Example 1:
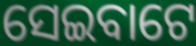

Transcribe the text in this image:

ସେଇବାଟେ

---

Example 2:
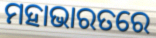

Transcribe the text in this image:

ମହାଭାରତରେ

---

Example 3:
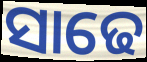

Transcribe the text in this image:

ସାଢେ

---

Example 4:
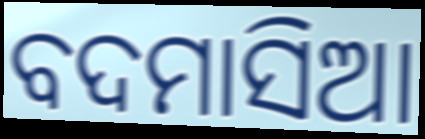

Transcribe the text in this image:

ବଦମାସିଆ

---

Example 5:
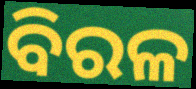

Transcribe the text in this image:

ବିରଳ